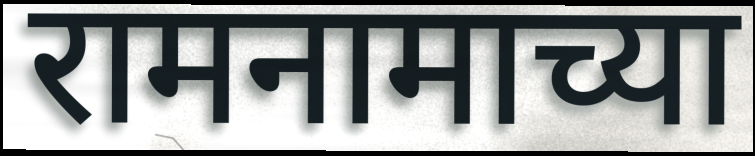
रामनामाच्या